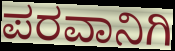
ಪರವಾನಿಗಿ